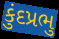
કુંદપ્રભુ